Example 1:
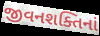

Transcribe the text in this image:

જીવનશક્તિનાં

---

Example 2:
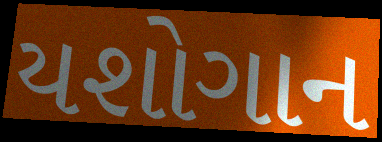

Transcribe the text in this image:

યશોગાન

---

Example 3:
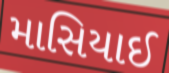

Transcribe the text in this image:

માસિયાઈ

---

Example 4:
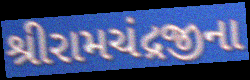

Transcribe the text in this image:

શ્રીરામચંદ્રજીના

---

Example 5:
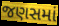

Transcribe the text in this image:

જણસમાં